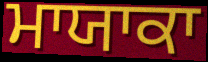
ਮਾਯਾਕਾ